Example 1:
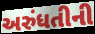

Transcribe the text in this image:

અરુંધતીની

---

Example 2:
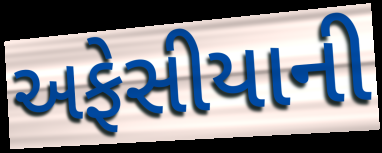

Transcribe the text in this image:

અફેસીયાની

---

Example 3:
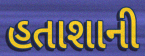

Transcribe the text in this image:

હતાશાની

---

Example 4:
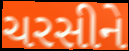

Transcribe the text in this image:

ચરસીને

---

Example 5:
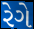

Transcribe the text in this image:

રેગે